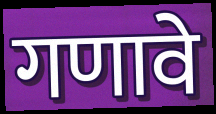
गणावे